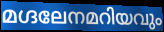
മഗ്ദലേനമറിയവും